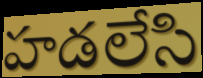
హడలేసి